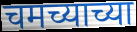
चमच्याच्या